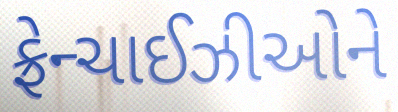
ફ્રેન્ચાઈઝીઓને